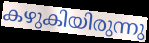
കഴുകിയിരുന്നു